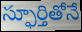
స్ఫూర్తితోనే